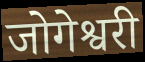
जोगेश्वरी